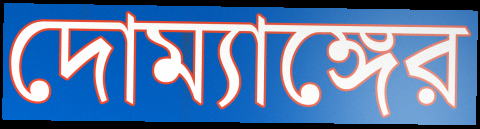
দোম্যাঙ্গের